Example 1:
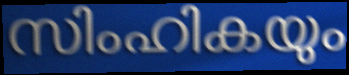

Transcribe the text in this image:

സിംഹികയും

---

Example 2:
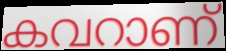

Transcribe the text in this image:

കവറാണ്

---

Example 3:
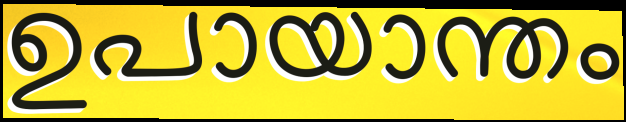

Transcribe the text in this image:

ഉപായാന്തം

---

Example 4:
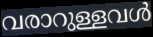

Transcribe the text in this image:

വരാറുള്ളവൾ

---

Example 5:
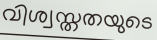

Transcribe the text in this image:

വിശ്വസ്തതയുടെ